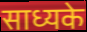
साध्यके